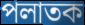
পলাতক